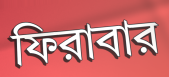
ফিরাবার